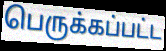
பெருக்கப்பட்ட